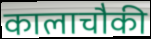
कालाचौकी